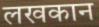
लखकान